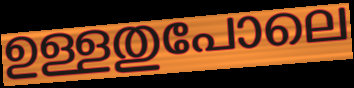
ഉള്ളതുപോലെ